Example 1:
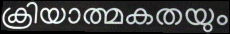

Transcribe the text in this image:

ക്രിയാത്മകതയും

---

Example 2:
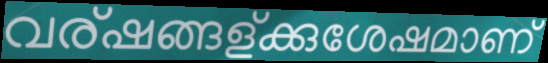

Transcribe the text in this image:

വര്ഷങ്ങള്ക്കുശേഷമാണ്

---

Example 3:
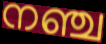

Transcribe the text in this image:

നഞ്ച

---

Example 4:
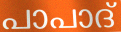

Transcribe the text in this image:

പാപാദ്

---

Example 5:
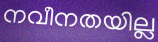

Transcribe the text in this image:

നവീനതയില്ല